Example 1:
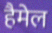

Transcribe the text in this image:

हैमेल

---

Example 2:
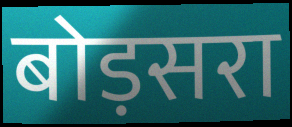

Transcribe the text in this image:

बोड़सरा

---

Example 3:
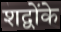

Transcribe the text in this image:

शद्वोंके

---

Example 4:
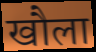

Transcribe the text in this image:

खौला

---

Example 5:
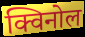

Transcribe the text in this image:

क्विनोल